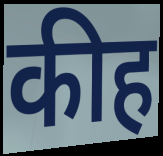
कीह